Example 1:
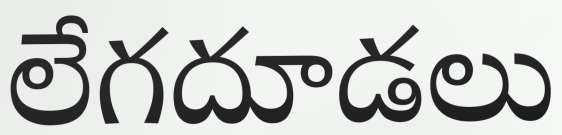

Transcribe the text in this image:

లేగదూడలు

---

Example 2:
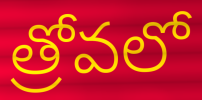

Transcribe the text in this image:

త్రోవలో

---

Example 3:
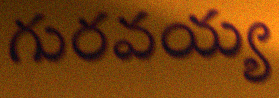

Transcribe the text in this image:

గురవయ్య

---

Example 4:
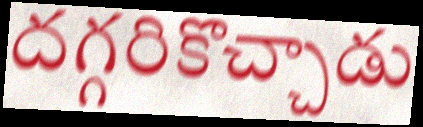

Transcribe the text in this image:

దగ్గరికొచ్చాడు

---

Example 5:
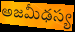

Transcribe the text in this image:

అజమీఢస్య